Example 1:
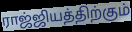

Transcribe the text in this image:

ராஜ்ஜியத்திற்கும்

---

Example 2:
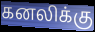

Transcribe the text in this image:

கனலிக்கு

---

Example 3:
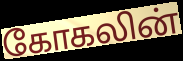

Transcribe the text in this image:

கோகலின்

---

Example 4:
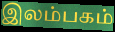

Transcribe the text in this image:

இலம்பகம்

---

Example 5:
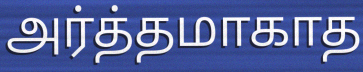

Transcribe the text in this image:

அர்த்தமாகாத